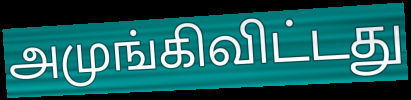
அமுங்கிவிட்டது